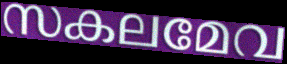
സകലമേവ